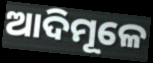
ଆଦିମୂଳେ